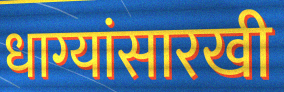
धाग्यांसारखी